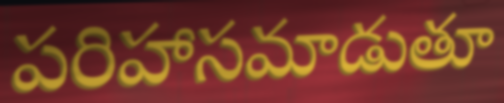
పరిహాసమాడుతూ